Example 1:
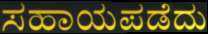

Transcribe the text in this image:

ಸಹಾಯಪಡೆದು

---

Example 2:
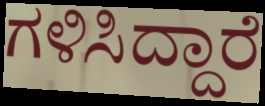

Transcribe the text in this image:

ಗಳಿಸಿದ್ದಾರೆ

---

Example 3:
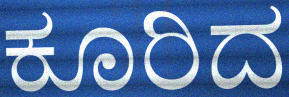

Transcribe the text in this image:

ಕೂರಿದ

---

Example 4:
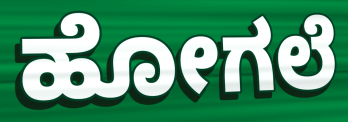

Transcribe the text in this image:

ಹೋಗಲೆ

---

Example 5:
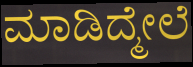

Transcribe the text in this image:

ಮಾಡಿದ್ಮೇಲೆ